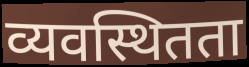
व्यवस्थितता